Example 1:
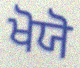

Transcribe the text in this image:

ਖੋਯੋ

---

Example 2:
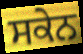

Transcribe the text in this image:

ਸਕੇਨ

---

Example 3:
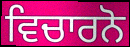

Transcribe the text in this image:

ਵਿਚਾਰਨੋ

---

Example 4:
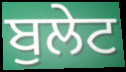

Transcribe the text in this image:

ਬੁਲੇਟ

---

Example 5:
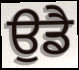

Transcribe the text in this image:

ਉਡੈ